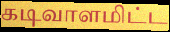
கடிவாளமிட்ட